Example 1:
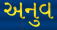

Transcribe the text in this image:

અનુવ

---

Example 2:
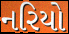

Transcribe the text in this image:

નરિયો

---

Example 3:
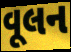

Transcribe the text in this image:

વૂલન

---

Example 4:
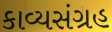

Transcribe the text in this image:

કાવ્યસંગ્રહ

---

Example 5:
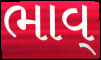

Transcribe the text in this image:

ભાવ્